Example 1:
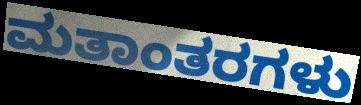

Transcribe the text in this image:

ಮತಾಂತರಗಳು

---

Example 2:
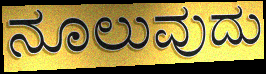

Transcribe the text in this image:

ನೂಲುವುದು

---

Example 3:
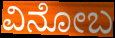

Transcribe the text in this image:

ವಿನೋಬ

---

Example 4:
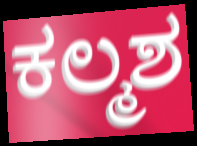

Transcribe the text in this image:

ಕಲ್ಮಶ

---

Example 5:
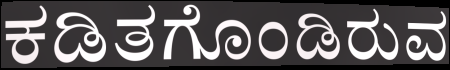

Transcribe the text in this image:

ಕಡಿತಗೊಂಡಿರುವ